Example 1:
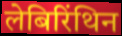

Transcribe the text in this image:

लेबिरिंथिन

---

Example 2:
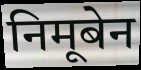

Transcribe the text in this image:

निमूबेन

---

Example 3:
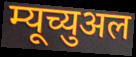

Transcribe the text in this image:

म्यूच्युअल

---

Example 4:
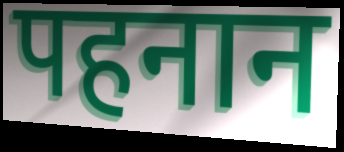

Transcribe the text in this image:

पहनान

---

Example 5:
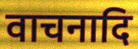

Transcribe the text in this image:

वाचनादि